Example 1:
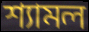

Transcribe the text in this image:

শ্যামল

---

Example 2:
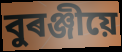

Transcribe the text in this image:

বুৰঞ্জীয়ে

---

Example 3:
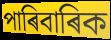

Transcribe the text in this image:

পাৰিবাৰিক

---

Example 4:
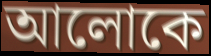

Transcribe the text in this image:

আলোকে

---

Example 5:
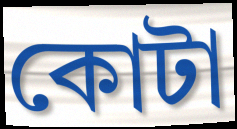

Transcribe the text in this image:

কোটা